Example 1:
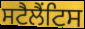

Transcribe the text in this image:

ਸਟੈਲੈਂਟਿਸ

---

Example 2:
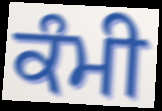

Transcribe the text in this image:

ਕੰਮੀ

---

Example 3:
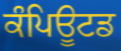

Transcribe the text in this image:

ਕੰਪਿਊਟਡ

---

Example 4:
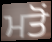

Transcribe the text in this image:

ਮਤੋਂ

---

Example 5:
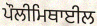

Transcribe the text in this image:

ਪੌਲੀਮਿਥਾਈਲ